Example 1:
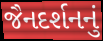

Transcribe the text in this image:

જૈનદર્શનનું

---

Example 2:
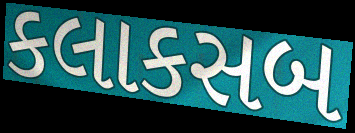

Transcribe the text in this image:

કલાકસબ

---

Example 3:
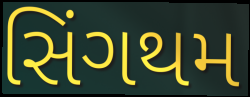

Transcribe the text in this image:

સિંગથમ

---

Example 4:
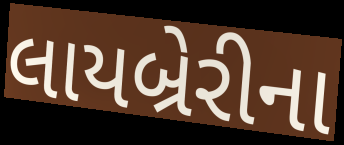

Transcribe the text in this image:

લાયબ્રેરીના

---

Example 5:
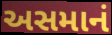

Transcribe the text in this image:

અસમાનં